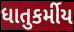
ધાતુકર્મીય